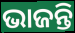
ଭାଜନ୍ତି